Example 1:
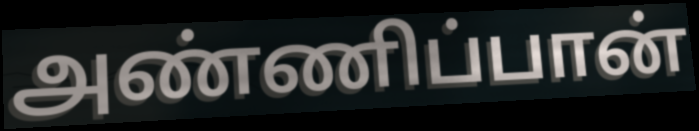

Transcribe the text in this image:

அண்ணிப்பான்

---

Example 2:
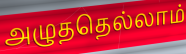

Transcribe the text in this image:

அழுததெல்லாம்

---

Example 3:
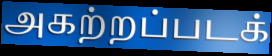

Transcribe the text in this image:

அகற்றப்படக்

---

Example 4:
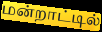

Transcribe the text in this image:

மன்றாட்டில்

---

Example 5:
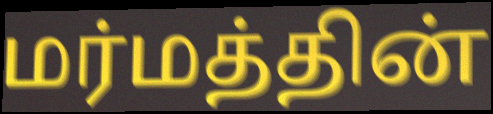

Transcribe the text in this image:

மர்மத்தின்